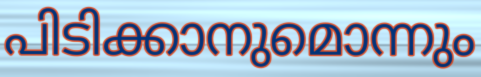
പിടിക്കാനുമൊന്നും